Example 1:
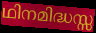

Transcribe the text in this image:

ഥിനമിദ്ധസ്സ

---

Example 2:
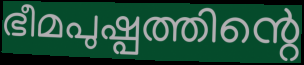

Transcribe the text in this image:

ഭീമപുഷ്പത്തിന്റെ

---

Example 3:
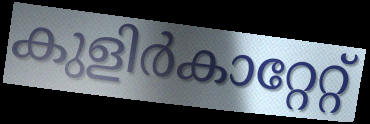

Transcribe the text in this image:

കുളിർകാറ്റേറ്റ്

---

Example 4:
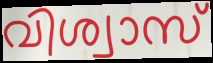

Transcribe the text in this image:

വിശ്വാസ്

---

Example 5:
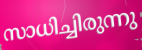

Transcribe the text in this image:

സാധിച്ചിരുന്നു